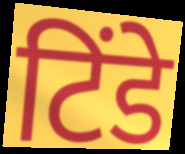
टिंडे